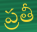
ప్రతీ